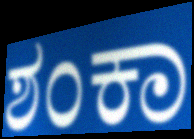
ಶಂಕಾ